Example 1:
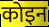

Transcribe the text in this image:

कोइन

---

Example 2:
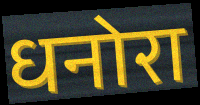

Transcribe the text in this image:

धनोरा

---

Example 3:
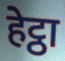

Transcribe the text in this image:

हेट्ठा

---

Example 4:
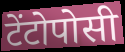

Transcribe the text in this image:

टेंटोपोसी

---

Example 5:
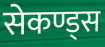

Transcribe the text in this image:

सेकण्ड्स